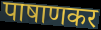
पाषाणकर